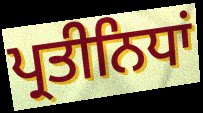
ਪ੍ਰਤੀਨਿਧਾਂ